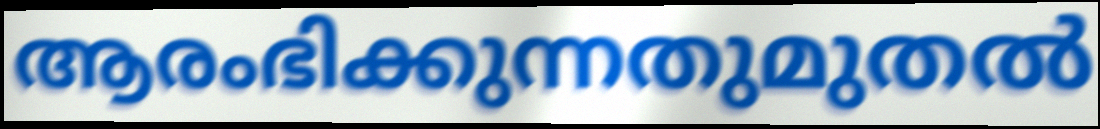
ആരംഭിക്കുന്നതുമുതൽ